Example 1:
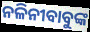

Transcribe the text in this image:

ନଳିନୀବାବୁଙ୍କ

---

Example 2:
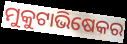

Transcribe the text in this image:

ମୁକୁଟାଭିଷେକର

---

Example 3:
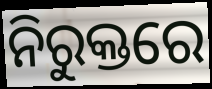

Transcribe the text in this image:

ନିରୁକ୍ତରେ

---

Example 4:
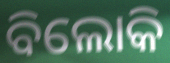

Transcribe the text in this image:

ବିଲୋକି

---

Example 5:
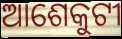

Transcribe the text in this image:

ଆଶେକୁଟୀ